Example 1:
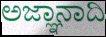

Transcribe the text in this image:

ಅಜ್ಞಾನಾದಿ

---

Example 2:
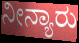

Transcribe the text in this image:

ನೀನ್ಯಾರು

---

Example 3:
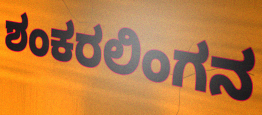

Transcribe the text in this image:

ಶಂಕರಲಿಂಗನ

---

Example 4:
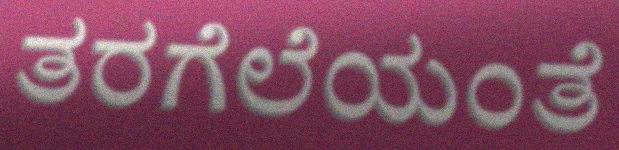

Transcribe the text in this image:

ತರಗೆಲೆಯಂತೆ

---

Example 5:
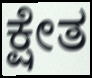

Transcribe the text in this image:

ಕ್ಷೇತ